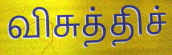
விசுத்திச்